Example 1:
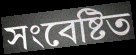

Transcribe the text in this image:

সংবেষ্টিত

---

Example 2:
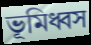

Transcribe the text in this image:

ভূমিধ্বস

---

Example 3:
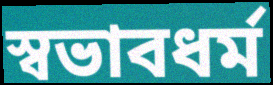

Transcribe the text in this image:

স্বভাবধর্ম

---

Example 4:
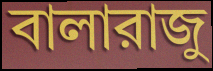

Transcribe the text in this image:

বালারাজু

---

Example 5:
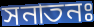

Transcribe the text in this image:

সনাতনঃ